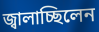
জ্বালাচ্ছিলেন